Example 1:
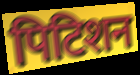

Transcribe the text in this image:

पिटिशन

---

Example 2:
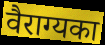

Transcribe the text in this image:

वैराग्यका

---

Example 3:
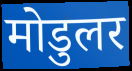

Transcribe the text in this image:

मोडुलर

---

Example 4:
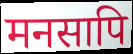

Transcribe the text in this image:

मनसापि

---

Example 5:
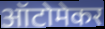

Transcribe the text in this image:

ऑटोमेकर